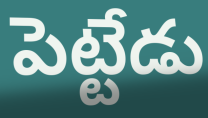
పెట్టేడు